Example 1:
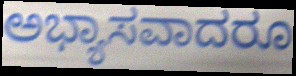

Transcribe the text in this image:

ಅಭ್ಯಾಸವಾದರೂ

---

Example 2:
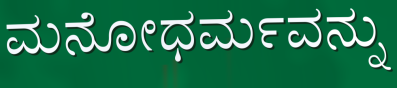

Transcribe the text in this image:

ಮನೋಧರ್ಮವನ್ನು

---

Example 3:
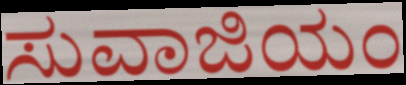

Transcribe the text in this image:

ಸುವಾಜಿಯಂ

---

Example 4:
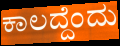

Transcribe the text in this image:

ಕಾಲದ್ದೆಂದು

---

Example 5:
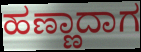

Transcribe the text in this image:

ಹಣ್ಣಾದಾಗ